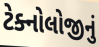
ટેક્નોલોજીનું